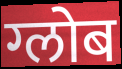
ग्लोब